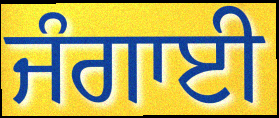
ਜੰਗਾਈ